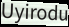
Uyirodu